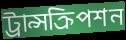
ট্রান্সক্রিপশন